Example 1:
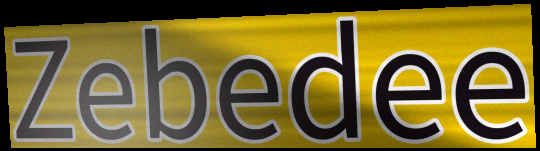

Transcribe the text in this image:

Zebedee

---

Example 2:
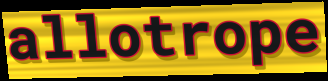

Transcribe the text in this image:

allotrope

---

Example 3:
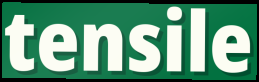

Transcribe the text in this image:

tensile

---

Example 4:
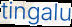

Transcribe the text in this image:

tingalu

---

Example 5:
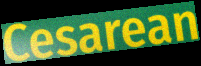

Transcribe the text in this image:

Cesarean